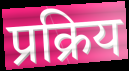
प्रक्रिय